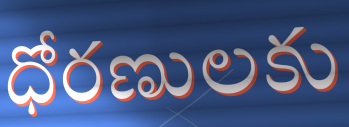
ధోరణులకు